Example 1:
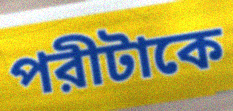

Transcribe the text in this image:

পরীটাকে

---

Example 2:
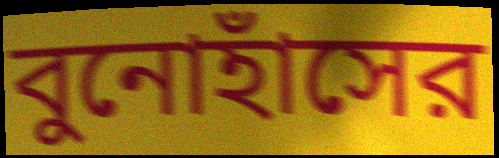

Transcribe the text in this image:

বুনোহাঁসের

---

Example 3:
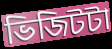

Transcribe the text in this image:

ভিজিটটা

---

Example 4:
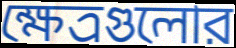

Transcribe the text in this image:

ক্ষেত্রগুলোর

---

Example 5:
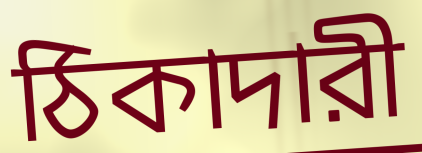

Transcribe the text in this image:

ঠিকাদারী